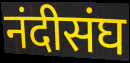
नंदीसंघ